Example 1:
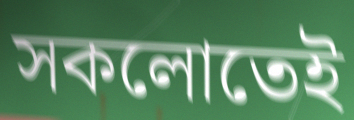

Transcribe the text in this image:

সকলোতেই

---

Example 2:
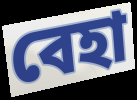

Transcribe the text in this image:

বেহা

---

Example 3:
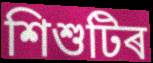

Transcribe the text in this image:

শিশুটিৰ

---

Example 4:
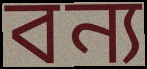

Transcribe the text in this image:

বন্য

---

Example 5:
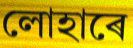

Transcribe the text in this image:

লোহাৰে